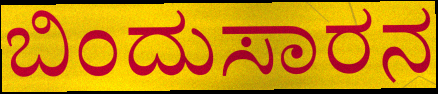
ಬಿಂದುಸಾರನ